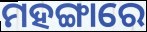
ମହଙ୍ଗାରେ